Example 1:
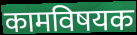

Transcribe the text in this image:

कामविषयक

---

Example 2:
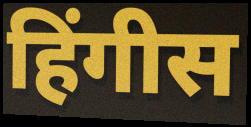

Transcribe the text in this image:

हिंगीस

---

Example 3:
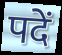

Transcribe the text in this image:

पदें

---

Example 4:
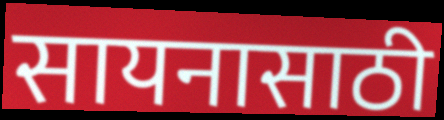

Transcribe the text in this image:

सायनासाठी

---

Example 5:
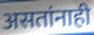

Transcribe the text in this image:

असतांनाही